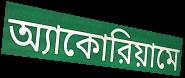
অ্যাকোরিয়ামে